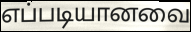
எப்படியானவை